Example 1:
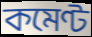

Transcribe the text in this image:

কমেণ্ট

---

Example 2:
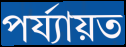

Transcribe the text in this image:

পৰ্য্যায়ত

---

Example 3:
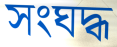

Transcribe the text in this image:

সংঘদ্ধ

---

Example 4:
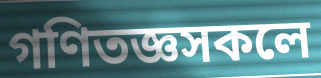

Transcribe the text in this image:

গণিতজ্ঞসকলে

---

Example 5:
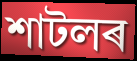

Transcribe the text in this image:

শাটলৰ